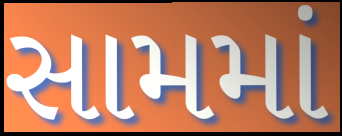
સામમાં